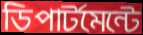
ডিপার্টমেন্টে